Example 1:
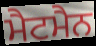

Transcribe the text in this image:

ਮੈਟਮੈਨ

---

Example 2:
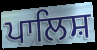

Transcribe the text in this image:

ਪਾਲਿਸ਼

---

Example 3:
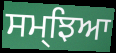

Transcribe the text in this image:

ਸਮ੍ਝਿਆ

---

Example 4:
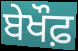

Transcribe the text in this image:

ਬੇਖੌਫ਼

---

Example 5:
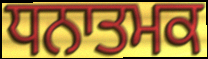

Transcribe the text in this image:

ਧਨਾਤਮਕ